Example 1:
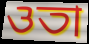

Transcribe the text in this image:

ওতা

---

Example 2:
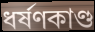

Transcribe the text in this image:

ধর্ষণকাণ্ড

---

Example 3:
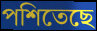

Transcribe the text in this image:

পশিতেছে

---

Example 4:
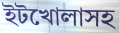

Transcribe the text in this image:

ইটখোলাসহ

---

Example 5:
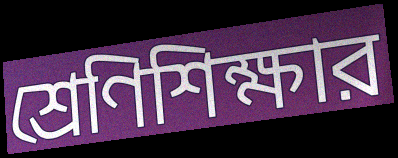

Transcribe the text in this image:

শ্রেণিশিক্ষার